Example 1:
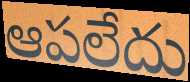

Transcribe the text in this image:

ఆపలేదు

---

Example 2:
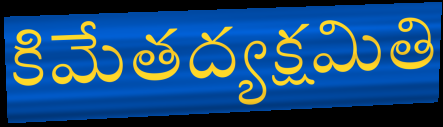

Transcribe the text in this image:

కిమేతద్యక్షమితి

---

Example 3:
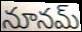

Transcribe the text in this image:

నూనమ్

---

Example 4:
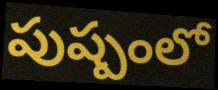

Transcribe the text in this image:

పుష్పంలో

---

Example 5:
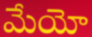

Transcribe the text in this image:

మేయో